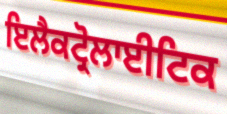
ਇਲੈਕਟ੍ਰੋਲਾਈਟਿਕ